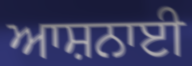
ਆਸ਼ਨਾਈ